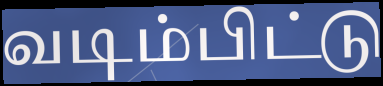
வடிம்பிட்டு